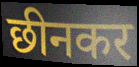
छीनकर